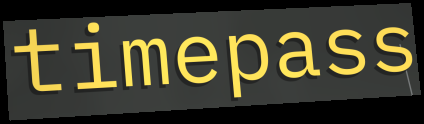
timepass